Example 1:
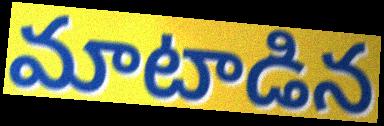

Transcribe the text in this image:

మాటాడిన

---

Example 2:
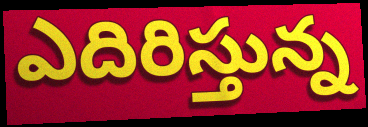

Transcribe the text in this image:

ఎదిరిస్తున్న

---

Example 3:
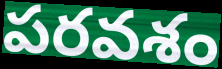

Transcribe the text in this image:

పరవశం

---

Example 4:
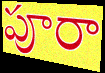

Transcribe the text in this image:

పూరా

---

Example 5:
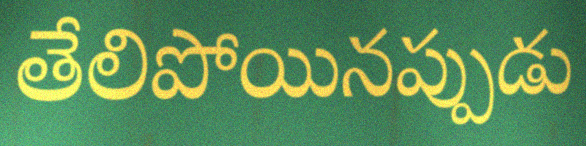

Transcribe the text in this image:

తేలిపోయినప్పుడు